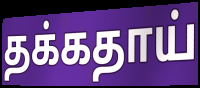
தக்கதாய்